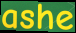
ashe